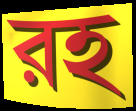
রহ